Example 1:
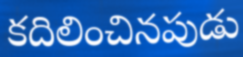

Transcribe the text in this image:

కదిలించినపుడు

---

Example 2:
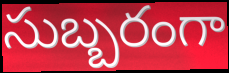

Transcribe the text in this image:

సుబ్బరంగా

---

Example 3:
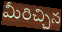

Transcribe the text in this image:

మీరిచ్చిన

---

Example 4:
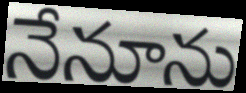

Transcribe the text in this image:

నేనూను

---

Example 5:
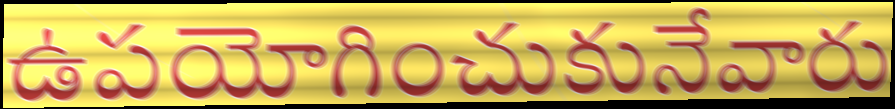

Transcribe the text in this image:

ఉపయోగించుకునేవారు